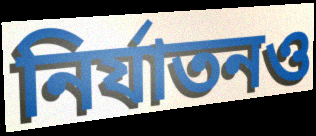
নির্যাতনও